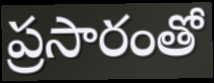
ప్రసారంతో